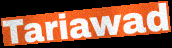
Tariawad